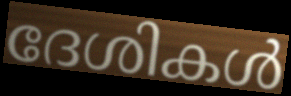
ദേശികൾ